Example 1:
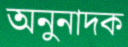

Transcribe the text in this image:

অনুনাদক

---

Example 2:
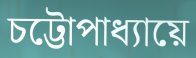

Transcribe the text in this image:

চট্টোপাধ্যায়ে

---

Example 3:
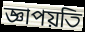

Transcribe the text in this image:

জ্ঞাপয়তি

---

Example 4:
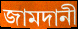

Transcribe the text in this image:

জামদানী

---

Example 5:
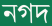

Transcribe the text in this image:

নগদ